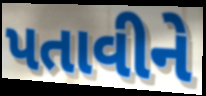
પતાવીને